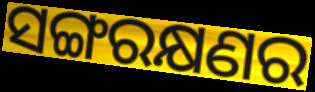
ସଙ୍ଗରକ୍ଷଣର